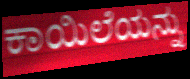
ಕಾಯಿಲೆಯನ್ನು